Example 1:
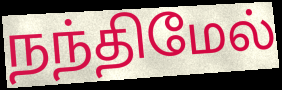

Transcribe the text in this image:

நந்திமேல்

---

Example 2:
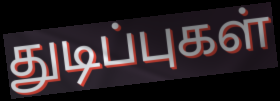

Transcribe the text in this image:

துடிப்புகள்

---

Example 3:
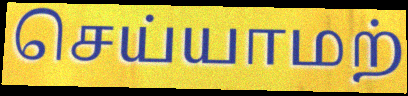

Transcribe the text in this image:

செய்யாமற்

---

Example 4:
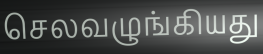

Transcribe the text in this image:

செலவழுங்கியது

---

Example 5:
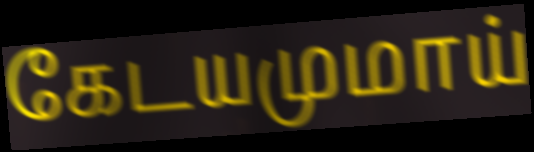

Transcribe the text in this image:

கேடயமுமாய்